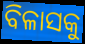
ବିଳାସକୁ